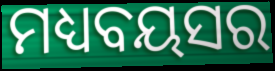
ମଧ୍ୟବୟସର